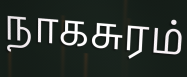
நாகசுரம்